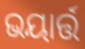
ଭୟାର୍ତ୍ତ